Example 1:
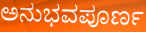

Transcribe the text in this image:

ಅನುಭವಪೂರ್ಣ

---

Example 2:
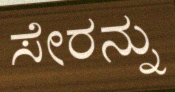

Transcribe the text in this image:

ಸೇರನ್ನು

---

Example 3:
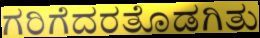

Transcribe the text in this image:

ಗರಿಗೆದರತೊಡಗಿತು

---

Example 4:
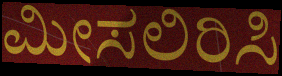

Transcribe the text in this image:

ಮೀಸಲಿರಿಸಿ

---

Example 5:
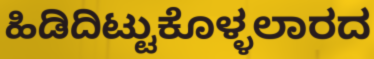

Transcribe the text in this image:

ಹಿಡಿದಿಟ್ಟುಕೊಳ್ಳಲಾರದ